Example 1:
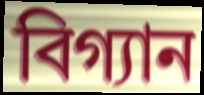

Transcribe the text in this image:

বিগ্যান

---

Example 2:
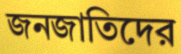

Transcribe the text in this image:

জনজাতিদের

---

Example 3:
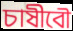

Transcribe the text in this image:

চাষীবৌ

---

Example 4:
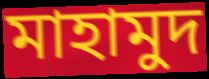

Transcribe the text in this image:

মাহামুদ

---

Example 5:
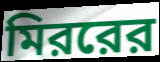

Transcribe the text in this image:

মিররের